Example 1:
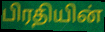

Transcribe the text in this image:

பிரதியின்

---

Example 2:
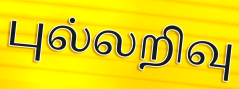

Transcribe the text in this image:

புல்லறிவு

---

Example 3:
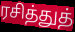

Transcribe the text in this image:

ரசித்துத்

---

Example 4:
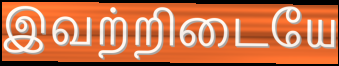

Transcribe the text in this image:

இவற்றிடையே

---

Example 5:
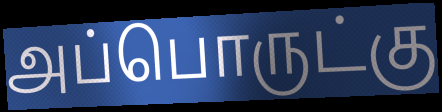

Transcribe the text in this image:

அப்பொருட்கு